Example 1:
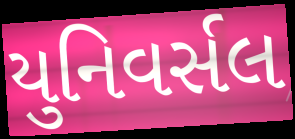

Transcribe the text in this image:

યુનિવર્સલ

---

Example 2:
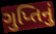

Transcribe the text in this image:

ગુપ્તિનું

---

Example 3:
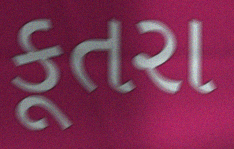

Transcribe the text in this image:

કૂતરા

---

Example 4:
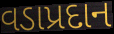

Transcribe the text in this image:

વડાપ્રદાન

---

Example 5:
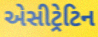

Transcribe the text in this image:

એસીટ્રેટિન